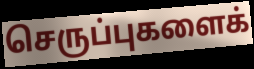
செருப்புகளைக்